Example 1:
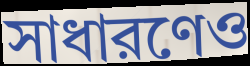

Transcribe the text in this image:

সাধারণেও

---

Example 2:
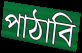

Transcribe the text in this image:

পাঠাবি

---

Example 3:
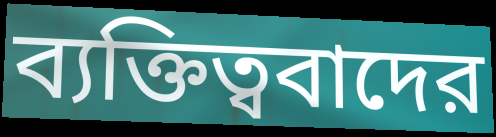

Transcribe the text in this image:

ব্যক্তিত্ববাদের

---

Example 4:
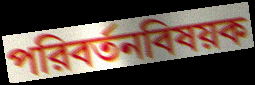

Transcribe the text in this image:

পরিবর্তনবিষয়ক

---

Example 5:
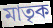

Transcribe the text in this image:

মাতৃক